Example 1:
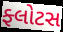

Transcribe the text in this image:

ફ્લોટસ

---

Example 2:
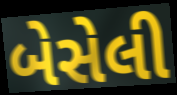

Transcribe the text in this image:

બેસેલી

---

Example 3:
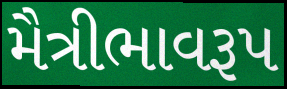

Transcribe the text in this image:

મૈત્રીભાવરૂપ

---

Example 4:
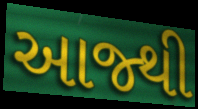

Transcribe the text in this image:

આજ્થી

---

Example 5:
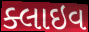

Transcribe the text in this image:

ક્લાઇવ